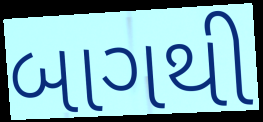
બાગથી